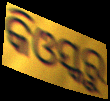
କିଓସ୍କରୁ